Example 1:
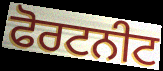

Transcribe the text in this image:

ਫੋਰਟਨੀਟ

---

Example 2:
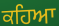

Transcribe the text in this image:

ਕਹਿਆ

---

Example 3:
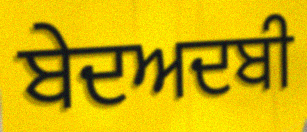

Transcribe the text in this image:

ਬੇਦਅਦਬੀ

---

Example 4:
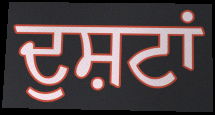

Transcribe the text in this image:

ਦੁਸ਼ਟਾਂ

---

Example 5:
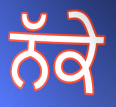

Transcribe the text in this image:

ਨੱਕੇ